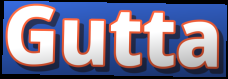
Gutta